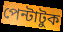
পেন্টাটুক